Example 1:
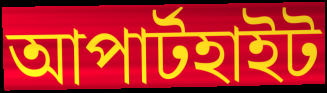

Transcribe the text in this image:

আপাৰ্টহাইট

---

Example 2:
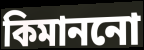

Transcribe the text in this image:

কিমাননো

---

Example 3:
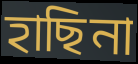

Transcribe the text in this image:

হাছিনা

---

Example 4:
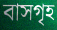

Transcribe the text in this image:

বাসগৃহ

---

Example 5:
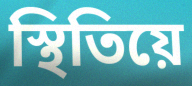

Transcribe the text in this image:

স্থিতিয়ে